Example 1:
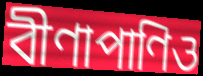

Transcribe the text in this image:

বীণাপাণিও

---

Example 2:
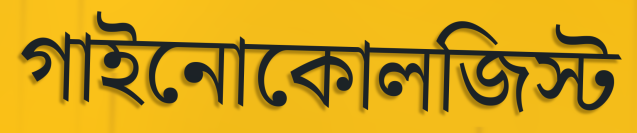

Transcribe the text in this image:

গাইনোকোলজিস্ট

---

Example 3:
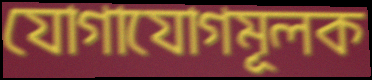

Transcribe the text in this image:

যোগাযোগমূলক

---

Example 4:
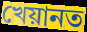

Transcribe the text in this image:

খেয়ানত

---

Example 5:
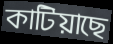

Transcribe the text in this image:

কাটিয়াছে